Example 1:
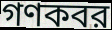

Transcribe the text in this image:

গণকবর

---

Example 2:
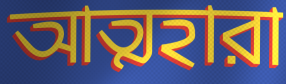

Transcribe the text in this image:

আত্মহারা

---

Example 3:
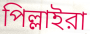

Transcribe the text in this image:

পিল্লাইরা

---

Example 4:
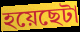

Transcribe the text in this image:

হয়েছেটা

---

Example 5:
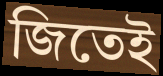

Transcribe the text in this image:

জিতেই